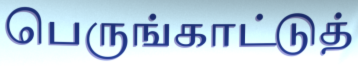
பெருங்காட்டுத்